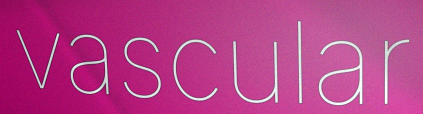
vascular